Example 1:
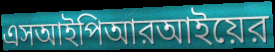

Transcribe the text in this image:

এসআইপিআরআইয়ের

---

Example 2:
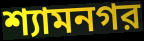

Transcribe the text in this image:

শ্যামনগর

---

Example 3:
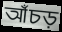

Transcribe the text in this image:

আঁচড়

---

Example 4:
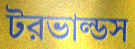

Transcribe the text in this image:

টরভাল্ডস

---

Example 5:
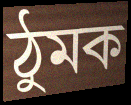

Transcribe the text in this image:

ঠুমক